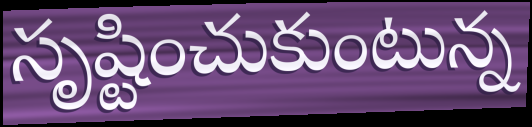
సృష్టించుకుంటున్న